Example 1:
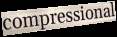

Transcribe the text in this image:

compressional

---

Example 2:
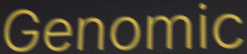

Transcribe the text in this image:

Genomic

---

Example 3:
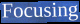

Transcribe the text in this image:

Focusing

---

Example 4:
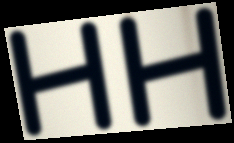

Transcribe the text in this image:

HH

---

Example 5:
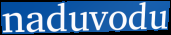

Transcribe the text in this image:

naduvodu